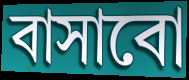
বাসাবো